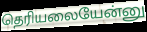
தெரியலையேன்னு